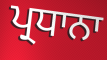
ਪ੍ਰਧਾਨਾ